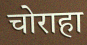
चोराहा